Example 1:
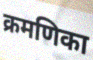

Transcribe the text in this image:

क्रमणिका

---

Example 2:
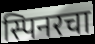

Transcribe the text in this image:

स्पिनरचा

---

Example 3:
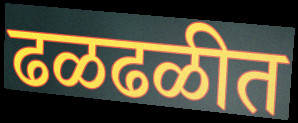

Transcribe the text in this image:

ढळढळीत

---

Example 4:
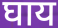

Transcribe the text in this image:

घाय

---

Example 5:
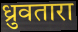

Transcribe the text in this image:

ध्रुवतारा